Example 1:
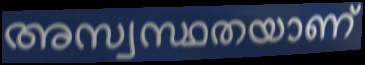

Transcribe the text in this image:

അസ്വസ്ഥതയാണ്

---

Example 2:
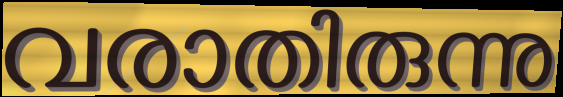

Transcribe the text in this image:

വരാതിരുന്നു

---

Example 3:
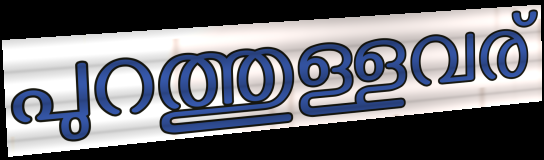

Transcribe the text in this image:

പുറത്തുള്ളവര്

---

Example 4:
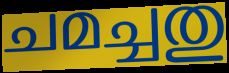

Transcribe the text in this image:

ചമച്ചതു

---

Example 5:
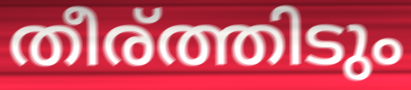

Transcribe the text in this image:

തീര്ത്തിടും